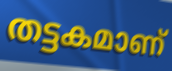
തട്ടകമാണ്